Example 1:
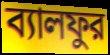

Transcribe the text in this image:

ব্যালফুর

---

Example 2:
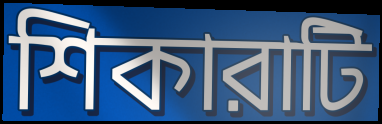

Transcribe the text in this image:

শিকারাটি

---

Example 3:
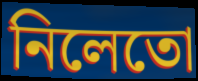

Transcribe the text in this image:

নিলেতো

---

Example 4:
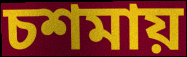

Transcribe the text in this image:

চশমায়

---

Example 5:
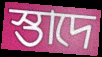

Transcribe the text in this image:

স্তাদে